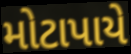
મોટાપાયે